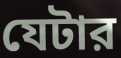
যেটার